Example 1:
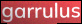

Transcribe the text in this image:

garrulus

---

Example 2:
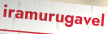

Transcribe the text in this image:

iramurugavel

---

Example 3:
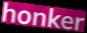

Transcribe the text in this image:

honker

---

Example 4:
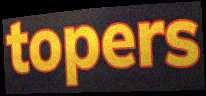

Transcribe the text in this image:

topers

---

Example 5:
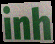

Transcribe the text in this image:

inh